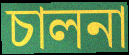
চালনা